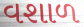
વશાળ